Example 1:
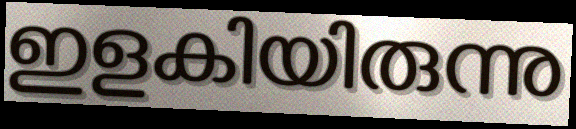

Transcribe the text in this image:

ഇളകിയിരുന്നു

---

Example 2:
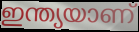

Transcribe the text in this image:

ഇന്ത്യയാണ്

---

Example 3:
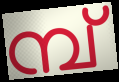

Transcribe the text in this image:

മ്പ്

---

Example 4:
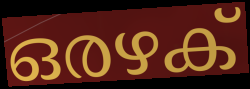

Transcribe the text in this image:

ഒരഴക്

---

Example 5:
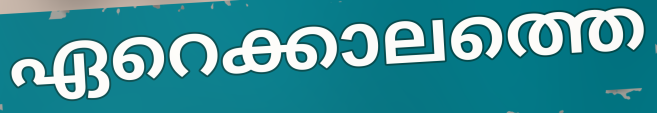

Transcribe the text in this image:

ഏറെക്കാലത്തെ